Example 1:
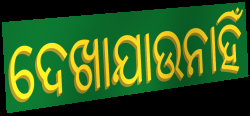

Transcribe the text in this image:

ଦେଖାଯାଉନାହିଁ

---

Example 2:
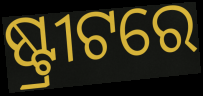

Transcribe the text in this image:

ଷ୍ଟ୍ରୀଟରେ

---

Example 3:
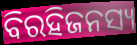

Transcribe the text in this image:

ବିରହିଜନସ୍ୟ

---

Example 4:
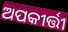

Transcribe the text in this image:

ଅପକୀର୍ତ୍ତୀ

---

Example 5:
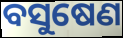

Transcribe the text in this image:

ବସୁଷେଣ